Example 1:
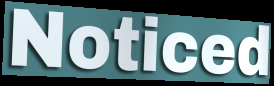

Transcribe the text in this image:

Noticed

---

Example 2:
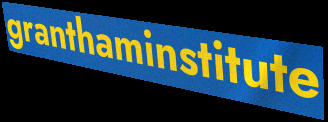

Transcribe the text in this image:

granthaminstitute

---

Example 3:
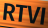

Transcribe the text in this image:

RTVI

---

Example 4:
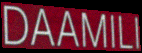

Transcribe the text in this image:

DAAMILI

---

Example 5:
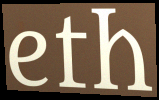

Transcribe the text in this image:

eth